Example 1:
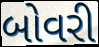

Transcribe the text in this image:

બોવરી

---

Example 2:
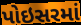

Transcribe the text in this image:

પોઇસરમાં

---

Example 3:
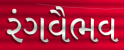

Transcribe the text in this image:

રંગવૈભવ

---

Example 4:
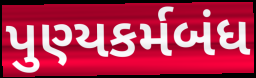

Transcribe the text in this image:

પુણ્યકર્મબંધ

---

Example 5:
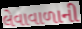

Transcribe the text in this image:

લેવાવાળાની